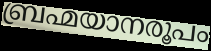
ബ്രഹ്മയാനരൂപം